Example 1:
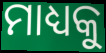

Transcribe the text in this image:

ମାଧ୍ୟକୁ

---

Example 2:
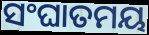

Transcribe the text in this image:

ସଂଘାତମୟ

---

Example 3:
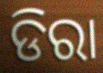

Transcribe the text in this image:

ଡିରା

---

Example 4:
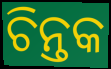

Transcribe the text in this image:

ଚିନ୍ତକ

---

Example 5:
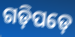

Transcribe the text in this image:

ଗଡ଼ିପଡ଼େ